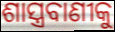
ଶାସ୍ତ୍ରବାଣୀକୁ